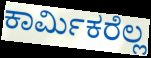
ಕಾರ್ಮಿಕರೆಲ್ಲ